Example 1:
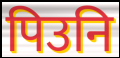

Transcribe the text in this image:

पिउनि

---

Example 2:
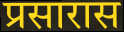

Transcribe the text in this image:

प्रसारास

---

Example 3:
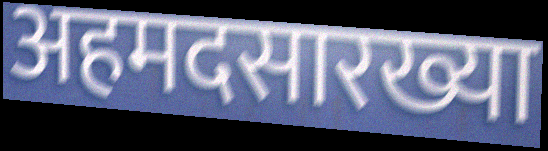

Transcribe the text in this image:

अहमदसारख्या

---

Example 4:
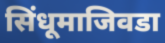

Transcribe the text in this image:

सिंधूमाजिवडा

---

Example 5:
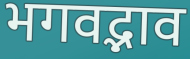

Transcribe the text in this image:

भगवद्भाव